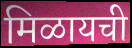
मिळायची